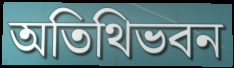
অতিথিভবন